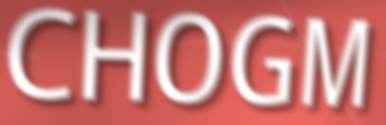
CHOGM